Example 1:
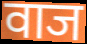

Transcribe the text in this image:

वाज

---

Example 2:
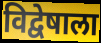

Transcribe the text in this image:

विद्वेषाला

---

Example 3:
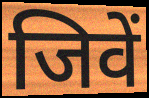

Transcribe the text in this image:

जिवें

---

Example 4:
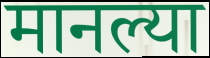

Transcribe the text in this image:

मानल्या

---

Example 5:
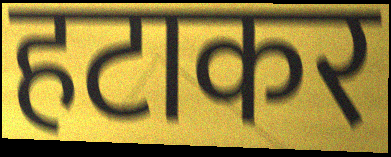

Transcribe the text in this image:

हटाकर